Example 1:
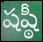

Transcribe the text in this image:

షష్ఠీ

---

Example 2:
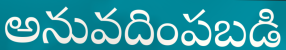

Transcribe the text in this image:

అనువదింపబడి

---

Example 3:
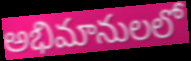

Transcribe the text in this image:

అభిమానులలో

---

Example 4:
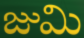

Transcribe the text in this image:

జుమి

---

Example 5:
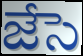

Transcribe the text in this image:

జేసె